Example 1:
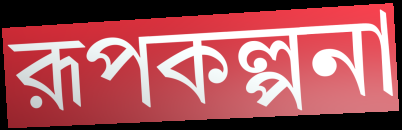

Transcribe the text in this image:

রূপকল্পনা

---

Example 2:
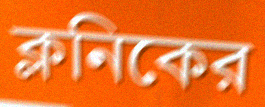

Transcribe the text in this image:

ক্লনিকের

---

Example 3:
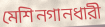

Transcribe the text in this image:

মেশিনগানধারী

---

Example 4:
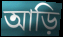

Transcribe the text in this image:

আড়ি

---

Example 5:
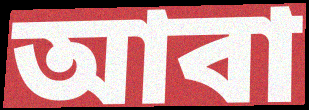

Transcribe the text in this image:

আবা